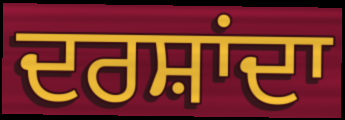
ਦਰਸ਼ਾਂਦਾ